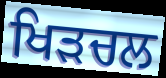
ਖਿੜਚਲ